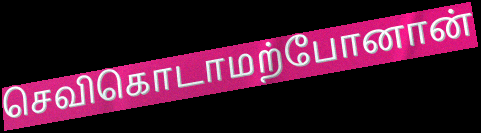
செவிகொடாமற்போனான்